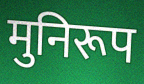
मुनिरूप